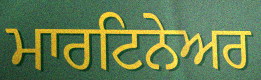
ਮਾਰਟਿਨੇਅਰ